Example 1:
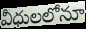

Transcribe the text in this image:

వీధులలోనూ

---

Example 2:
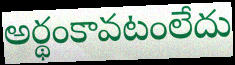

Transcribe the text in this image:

అర్థంకావటంలేదు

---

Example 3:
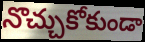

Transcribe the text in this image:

నొచ్చుకోకుండా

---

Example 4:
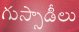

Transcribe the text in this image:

గుస్సాడీలు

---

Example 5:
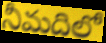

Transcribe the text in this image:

నీమదిలో